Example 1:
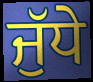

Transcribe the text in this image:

ਜੁੱਧੇ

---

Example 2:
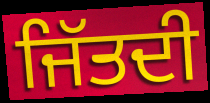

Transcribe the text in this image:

ਜਿੱਤਦੀ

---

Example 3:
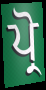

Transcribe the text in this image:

ਪ੍ਰੋ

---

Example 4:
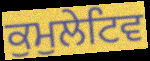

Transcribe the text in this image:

ਕੁਮੁਲੇਟਿਵ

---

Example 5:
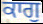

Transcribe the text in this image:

ਕਾਗੁ